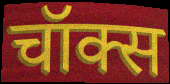
चॉक्स